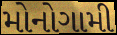
મોનોગામી